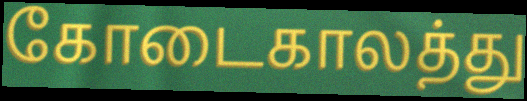
கோடைகாலத்து